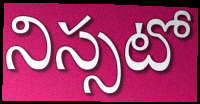
నిస్సటో